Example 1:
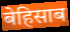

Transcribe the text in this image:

बेहिसाब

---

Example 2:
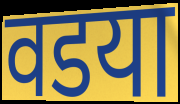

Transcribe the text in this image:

वडया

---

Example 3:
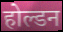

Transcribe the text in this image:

होल्डन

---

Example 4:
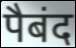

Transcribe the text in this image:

पैबंद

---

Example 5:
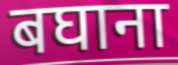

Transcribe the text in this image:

बघाना